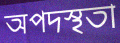
অপদস্থতা